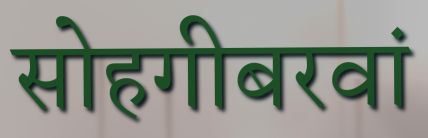
सोहगीबरवां